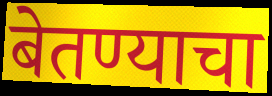
बेतण्याचा